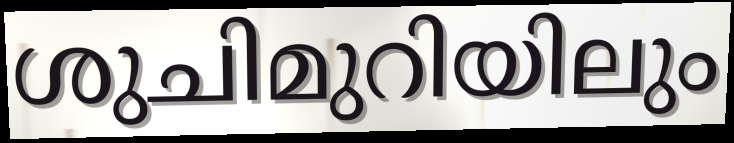
ശുചിമുറിയിലും